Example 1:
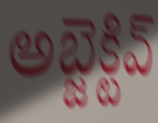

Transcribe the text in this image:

అబ్జెక్టివ్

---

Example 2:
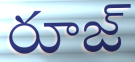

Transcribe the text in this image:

రూజ్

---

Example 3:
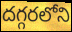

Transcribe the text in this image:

దగ్గరలోని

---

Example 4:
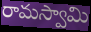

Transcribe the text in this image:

రామస్వామి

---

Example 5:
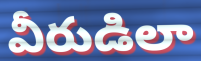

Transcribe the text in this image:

వీరుడిలా